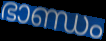
ഭാണ്ഡം